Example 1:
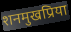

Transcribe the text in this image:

शनमुखप्रिया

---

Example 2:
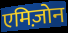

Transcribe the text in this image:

एमिज़ोन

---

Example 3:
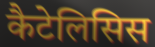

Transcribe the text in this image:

कैटेलिसिस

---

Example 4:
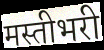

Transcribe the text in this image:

मस्तीभरी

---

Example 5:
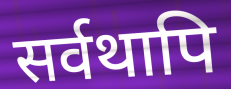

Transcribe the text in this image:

सर्वथापि